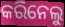
କରିନେଲୁ